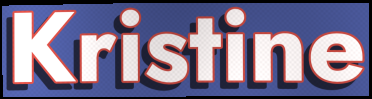
Kristine